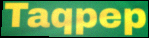
Taqpep